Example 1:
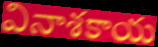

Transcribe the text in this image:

వినాశకాయ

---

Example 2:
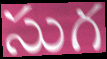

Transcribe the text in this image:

సుగ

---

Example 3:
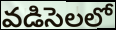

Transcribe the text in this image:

వడిసెలలో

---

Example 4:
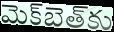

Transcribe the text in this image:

మెక్‌బెత్‌కు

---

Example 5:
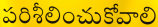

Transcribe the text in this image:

పరిశీలించుకోవాలి